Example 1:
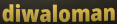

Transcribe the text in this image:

diwaloman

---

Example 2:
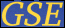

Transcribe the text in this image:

GSE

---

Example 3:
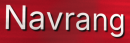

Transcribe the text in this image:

Navrang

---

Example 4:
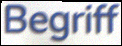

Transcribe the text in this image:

Begriff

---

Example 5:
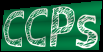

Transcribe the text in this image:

CCPs